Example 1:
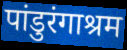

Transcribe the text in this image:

पांडुरंगाश्रम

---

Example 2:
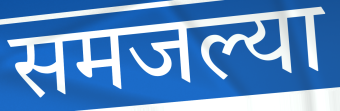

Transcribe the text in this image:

समजल्या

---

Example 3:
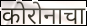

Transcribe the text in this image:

कोरोनाचा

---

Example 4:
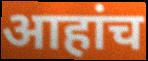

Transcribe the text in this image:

आहांच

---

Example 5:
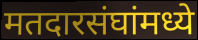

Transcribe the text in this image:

मतदारसंघांमध्ये